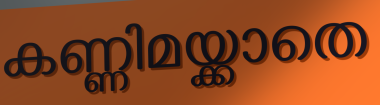
കണ്ണിമയ്ക്കാതെ